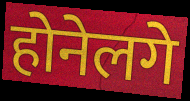
होनेलगे